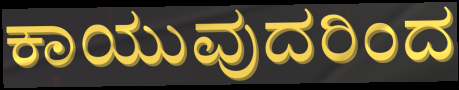
ಕಾಯುವುದರಿಂದ